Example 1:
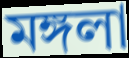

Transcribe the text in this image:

মঙ্গলা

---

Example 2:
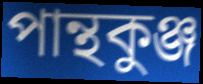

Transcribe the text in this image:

পান্থকুঞ্জ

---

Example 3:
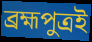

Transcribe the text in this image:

ব্রহ্মপুত্রই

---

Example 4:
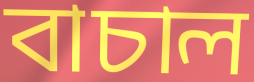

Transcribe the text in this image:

বাচাল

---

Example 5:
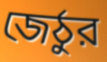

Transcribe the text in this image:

জেঠুর